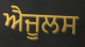
ਐਜੂਲਸ